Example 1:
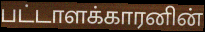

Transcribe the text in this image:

பட்டாளக்காரனின்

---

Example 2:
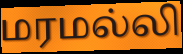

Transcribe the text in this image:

மரமல்லி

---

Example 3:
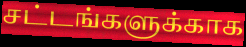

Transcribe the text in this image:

சட்டங்களுக்காக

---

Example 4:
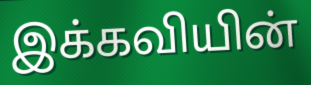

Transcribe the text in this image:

இக்கவியின்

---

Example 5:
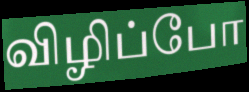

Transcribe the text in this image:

விழிப்போ